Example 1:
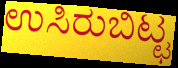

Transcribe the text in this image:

ಉಸಿರುಬಿಟ್ಟ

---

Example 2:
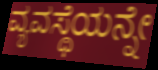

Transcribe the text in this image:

ವ್ಯವಸ್ಥೆಯನ್ನೇ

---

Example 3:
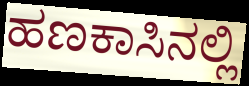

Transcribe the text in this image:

ಹಣಕಾಸಿನಲ್ಲಿ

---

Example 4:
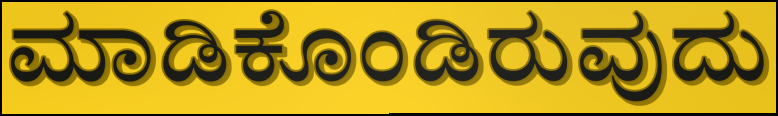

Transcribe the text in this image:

ಮಾಡಿಕೊಂಡಿರುವುದು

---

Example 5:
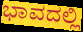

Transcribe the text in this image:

ಭಾವದಲ್ಲಿ